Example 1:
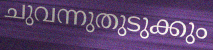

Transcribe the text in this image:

ചുവന്നുതുടുക്കും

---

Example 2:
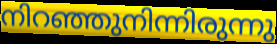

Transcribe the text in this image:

നിറഞ്ഞുനിന്നിരുന്നു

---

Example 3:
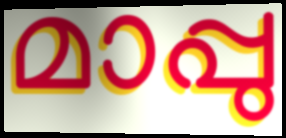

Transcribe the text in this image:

മാപ്പു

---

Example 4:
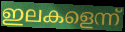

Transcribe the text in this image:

ഇലകളെന്ന്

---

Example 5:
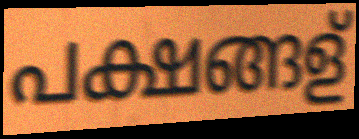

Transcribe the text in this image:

പക്ഷങ്ങള്